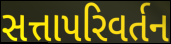
સત્તાપરિવર્તન